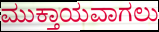
ಮುಕ್ತಾಯವಾಗಲು